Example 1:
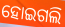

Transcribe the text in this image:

ହୋଇଗଲି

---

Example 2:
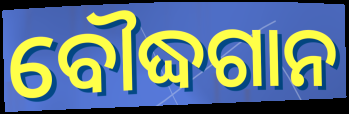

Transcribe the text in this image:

ବୌଦ୍ଧଗାନ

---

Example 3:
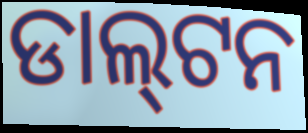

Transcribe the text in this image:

ଡାଲ୍‌ଟନ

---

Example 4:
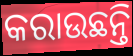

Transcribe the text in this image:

କରାଉଛନ୍ତି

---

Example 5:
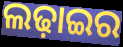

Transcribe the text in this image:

ଲଢ଼ାଇର